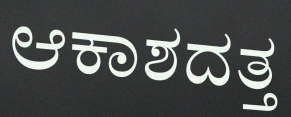
ಆಕಾಶದತ್ತ